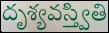
దృశ్యవస్త్వితి